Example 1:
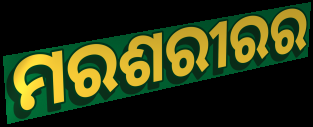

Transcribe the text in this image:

ମରଶରୀରର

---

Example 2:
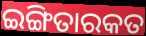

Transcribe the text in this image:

ଇଙ୍ଗିତାରକତ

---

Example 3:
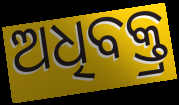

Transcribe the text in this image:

ଅଧିବକ୍ତ୍ର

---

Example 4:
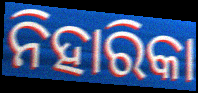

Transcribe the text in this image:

ନିହାରିକା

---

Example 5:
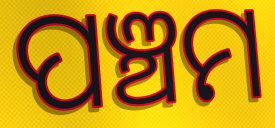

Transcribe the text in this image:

ପଞ୍ଚମ